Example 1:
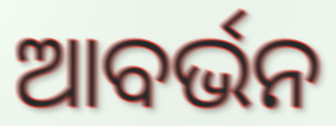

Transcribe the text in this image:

ଆବର୍ଭନ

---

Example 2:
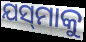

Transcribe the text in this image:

ଯସ୍‌ମାକୁ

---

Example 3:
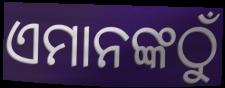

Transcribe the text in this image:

ଏମାନଙ୍କଠୁଁ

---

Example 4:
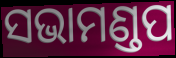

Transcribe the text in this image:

ସଭାମଣ୍ଡପ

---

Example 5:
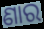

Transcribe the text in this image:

ଣାର